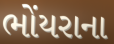
ભોંયરાના